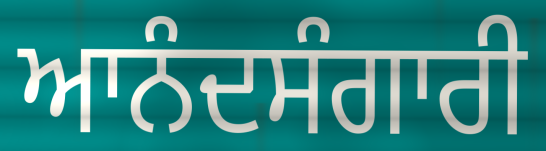
ਆਨੰਦਸੰਗਾਰੀ